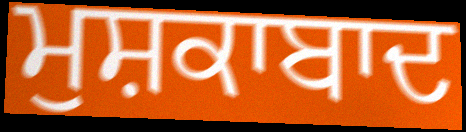
ਮੁਸ਼ਕਾਬਾਦ